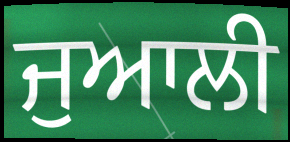
ਜੁਆਲੀ